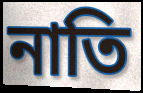
নাতি